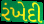
રંખેદી